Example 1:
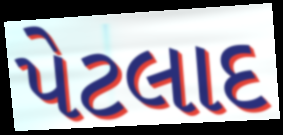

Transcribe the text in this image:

પેટલાદ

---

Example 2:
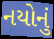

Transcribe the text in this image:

નયોનું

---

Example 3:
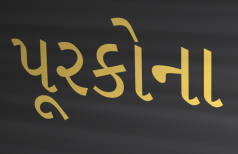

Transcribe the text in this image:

પૂરકોના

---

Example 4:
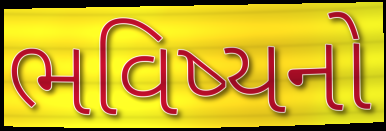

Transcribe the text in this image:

ભવિષ્યનો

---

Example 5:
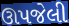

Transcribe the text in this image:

ઊપજેલી